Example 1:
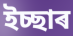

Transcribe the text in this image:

ইচ্ছাৰ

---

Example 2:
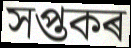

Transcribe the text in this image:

সপ্তকৰ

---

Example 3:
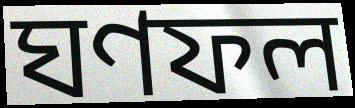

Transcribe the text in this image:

ঘণফল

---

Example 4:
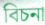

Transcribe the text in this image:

বিচনা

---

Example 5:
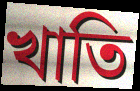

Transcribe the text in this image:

খাতি